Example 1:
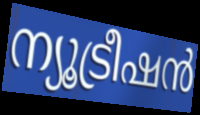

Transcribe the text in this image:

ന്യൂട്രീഷൻ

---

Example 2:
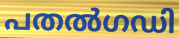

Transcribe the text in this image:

പതൽഗഡി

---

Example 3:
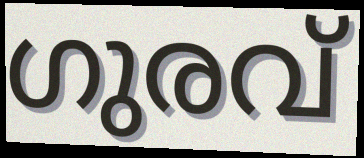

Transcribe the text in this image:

ഗുരവ്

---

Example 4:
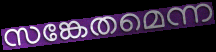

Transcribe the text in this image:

സങ്കേതമെന്ന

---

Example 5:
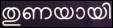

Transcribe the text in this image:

തുണയായി